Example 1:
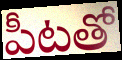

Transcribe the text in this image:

పీటతో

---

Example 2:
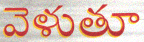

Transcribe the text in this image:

వెళుతూ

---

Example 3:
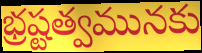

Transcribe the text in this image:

భ్రష్టత్వమునకు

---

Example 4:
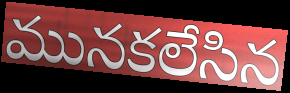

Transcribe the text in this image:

మునకలేసిన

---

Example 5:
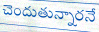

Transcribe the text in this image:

చెందుతున్నారనే